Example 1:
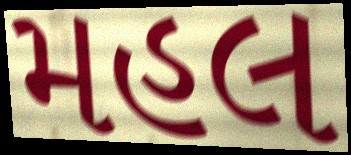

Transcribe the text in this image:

મહલ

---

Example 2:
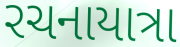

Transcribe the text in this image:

રચનાયાત્રા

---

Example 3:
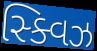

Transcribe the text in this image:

સ્ક્વિઝ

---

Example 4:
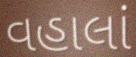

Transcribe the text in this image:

વહાલાં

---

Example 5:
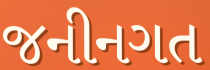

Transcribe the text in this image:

જનીનગત